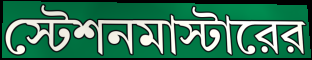
স্টেশনমাস্টারের